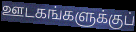
ஊடகங்களுக்குப்